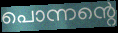
പൊന്നന്റെ